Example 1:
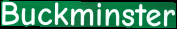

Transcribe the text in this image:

Buckminster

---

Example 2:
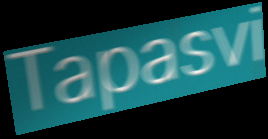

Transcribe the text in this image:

Tapasvi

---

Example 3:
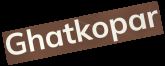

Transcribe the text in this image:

Ghatkopar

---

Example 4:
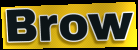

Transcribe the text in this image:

Brow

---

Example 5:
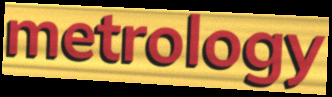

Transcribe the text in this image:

metrology